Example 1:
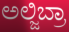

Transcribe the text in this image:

ಅಲ್ಜಿಬ್ರಾ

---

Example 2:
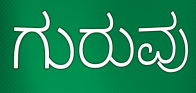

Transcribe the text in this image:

ಗುರುವು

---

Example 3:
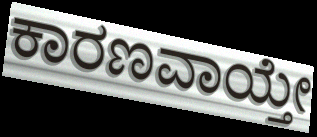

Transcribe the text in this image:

ಕಾರಣವಾಯ್ತೇ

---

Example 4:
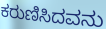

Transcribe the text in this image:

ಕರುಣಿಸಿದವನು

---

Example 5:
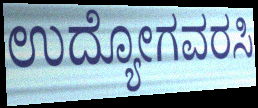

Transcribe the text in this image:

ಉದ್ಯೋಗವರಸಿ